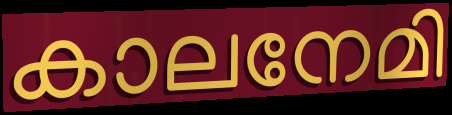
കാലനേമി